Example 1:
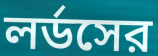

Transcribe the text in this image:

লর্ডসের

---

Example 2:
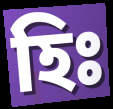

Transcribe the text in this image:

হিঃ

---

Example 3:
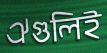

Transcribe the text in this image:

ঐগুলিই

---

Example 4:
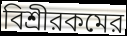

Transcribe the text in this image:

বিশ্রীরকমের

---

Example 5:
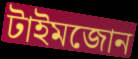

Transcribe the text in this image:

টাইমজোন